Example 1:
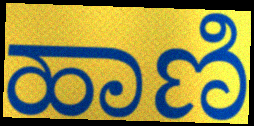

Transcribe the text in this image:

ಹಾಣಿ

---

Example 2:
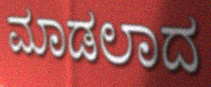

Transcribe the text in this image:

ಮಾಡಲಾದ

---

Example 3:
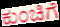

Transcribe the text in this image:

ಕುಂಚಿಗೆ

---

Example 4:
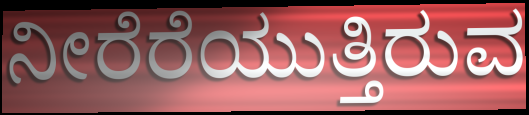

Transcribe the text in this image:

ನೀರೆರೆಯುತ್ತಿರುವ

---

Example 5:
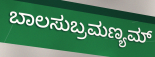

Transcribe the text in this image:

ಬಾಲಸುಬ್ರಮಣ್ಯಮ್